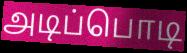
அடிப்பொடி